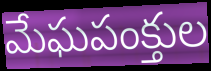
మేఘపంక్తుల